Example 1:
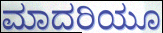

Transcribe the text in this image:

ಮಾದರಿಯೂ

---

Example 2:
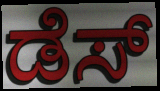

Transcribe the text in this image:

ಡೆಸ್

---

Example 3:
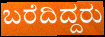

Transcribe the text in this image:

ಬರೆದಿದ್ದರು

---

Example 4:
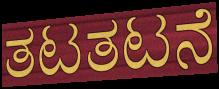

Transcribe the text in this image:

ತಟತಟನೆ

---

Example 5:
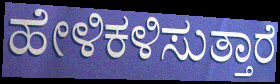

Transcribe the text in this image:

ಹೇಳಿಕಳಿಸುತ್ತಾರೆ